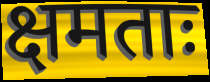
क्षमताः